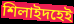
শিলাইদহেই